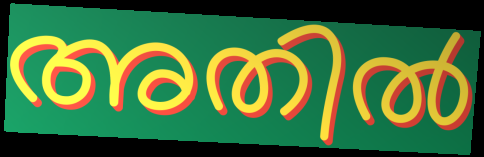
അതിൽ